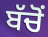
ਬੱਚੋਂ